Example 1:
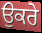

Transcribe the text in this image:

ਉਕਰੇ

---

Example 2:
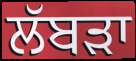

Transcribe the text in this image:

ਲੱਬੜਾ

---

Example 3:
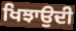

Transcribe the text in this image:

ਖਿਝਾਉਦੀ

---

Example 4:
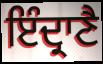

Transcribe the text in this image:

ਇੰਦ੍ਰਾਣੈ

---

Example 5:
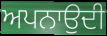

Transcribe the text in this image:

ਅਪਨਾਉਦੀ